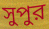
সুপুর